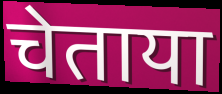
चेताया